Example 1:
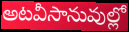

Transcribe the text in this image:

అటవీసానువుల్లో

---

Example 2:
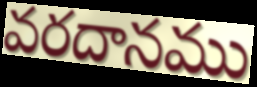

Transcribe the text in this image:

వరదానము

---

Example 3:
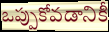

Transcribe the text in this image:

ఒప్పుకోవడానికీ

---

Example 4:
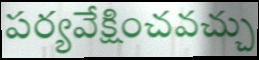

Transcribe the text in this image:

పర్యవేక్షించవచ్చు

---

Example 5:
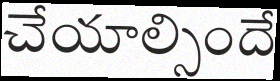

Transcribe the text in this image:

చేయాల్సిందే